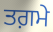
ਤਗ਼ਮੇ